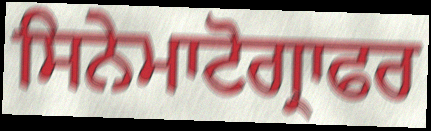
ਸਿਨੇਮਾਟੋਗ੍ਰਾਫਰ